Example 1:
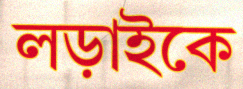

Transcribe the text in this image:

লড়াইকে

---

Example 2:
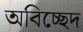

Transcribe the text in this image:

অবিচ্ছেদ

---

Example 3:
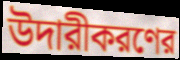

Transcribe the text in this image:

উদারীকরণের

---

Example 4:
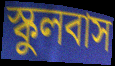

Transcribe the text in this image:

স্কুলবাস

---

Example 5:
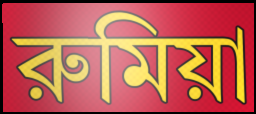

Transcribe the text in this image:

রুমিয়া